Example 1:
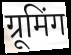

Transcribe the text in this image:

ग्रूमिंग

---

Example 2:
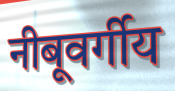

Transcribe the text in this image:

नीबूवर्गीय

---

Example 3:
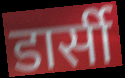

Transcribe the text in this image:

डार्सी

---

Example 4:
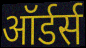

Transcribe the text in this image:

ऑर्डर्स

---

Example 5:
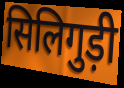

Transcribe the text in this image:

सिलिगुड़ी